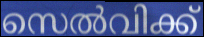
സെൽവിക്ക്